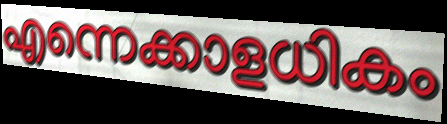
എന്നെക്കാളധികം